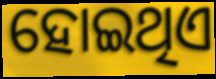
ହୋଇଥିଏ